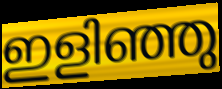
ഇളിഞ്ഞു